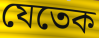
যেতেক